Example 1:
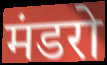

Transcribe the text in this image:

मंडरो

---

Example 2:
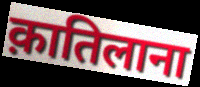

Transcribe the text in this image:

क़ातिलाना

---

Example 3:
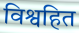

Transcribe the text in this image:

विश्वहित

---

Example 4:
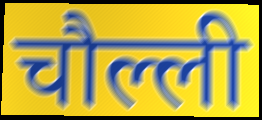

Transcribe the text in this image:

चौल्ली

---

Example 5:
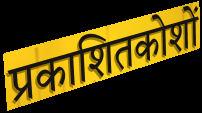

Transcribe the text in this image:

प्रकाशितकोशों